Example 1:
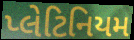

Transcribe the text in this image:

પ્લેટિનિયમ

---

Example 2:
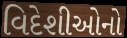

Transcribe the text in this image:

વિદેશીઓનો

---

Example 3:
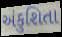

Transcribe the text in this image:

અંકુશિતા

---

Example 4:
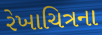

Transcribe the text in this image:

રેખાચિત્રના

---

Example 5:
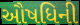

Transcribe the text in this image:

ઔષધિની